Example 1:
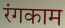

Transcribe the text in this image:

रंगकाम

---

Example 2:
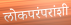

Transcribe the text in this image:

लोकपरंपरांशी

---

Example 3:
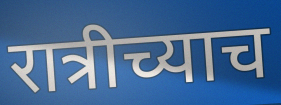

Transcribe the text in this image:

रात्रीच्याच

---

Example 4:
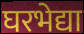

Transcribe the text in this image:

घरभेद्या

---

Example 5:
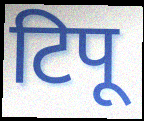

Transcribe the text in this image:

टिपू